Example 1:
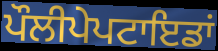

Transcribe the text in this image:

ਪੌਲੀਪੇਪਟਾਇਡਾਂ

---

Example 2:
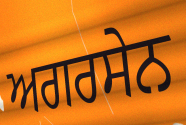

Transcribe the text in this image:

ਅਗਰਸੇਨ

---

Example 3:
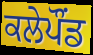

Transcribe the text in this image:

ਕਲੇਪੌਂਡ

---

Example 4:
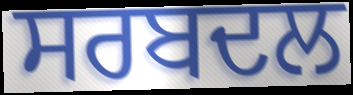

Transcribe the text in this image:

ਸਰਬਦਲ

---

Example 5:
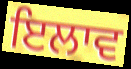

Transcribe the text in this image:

ਇਲਾਵ